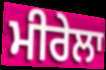
ਮੀਰੇਲਾ